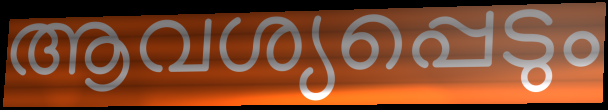
ആവശ്യപ്പെടും